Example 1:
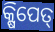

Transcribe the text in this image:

କ୍ଷିପେତ୍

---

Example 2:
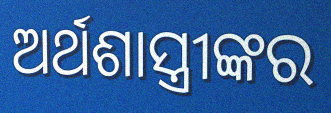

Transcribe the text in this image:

ଅର୍ଥଶାସ୍ତ୍ରୀଙ୍କର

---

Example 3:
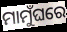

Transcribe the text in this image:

ମାମୁଁଘରେ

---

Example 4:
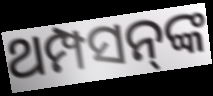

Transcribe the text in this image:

ଥମ୍ପସନ୍‌ଙ୍କ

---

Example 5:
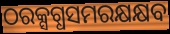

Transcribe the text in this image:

ଠରକ୍ସଗ୍ଧସମରକ୍ଷକ୍ଷବ